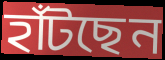
হাঁটছেন